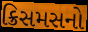
ક્રિસમસનો